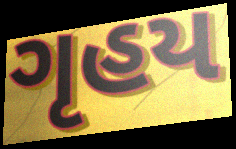
ગૃહય